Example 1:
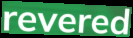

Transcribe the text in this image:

revered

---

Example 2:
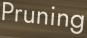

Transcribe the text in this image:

Pruning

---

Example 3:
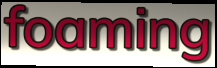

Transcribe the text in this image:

foaming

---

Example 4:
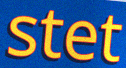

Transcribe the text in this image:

stet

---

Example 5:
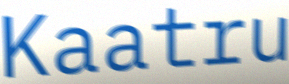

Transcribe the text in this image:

Kaatru